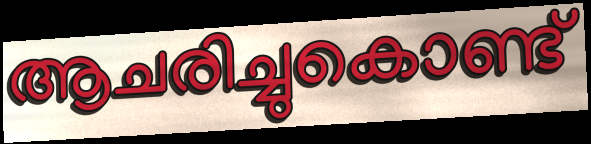
ആചരിച്ചുകൊണ്ട്